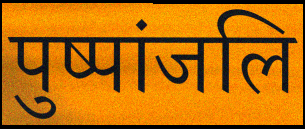
पुष्पांजलि